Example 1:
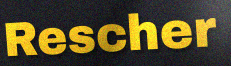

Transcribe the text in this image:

Rescher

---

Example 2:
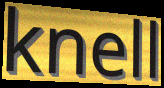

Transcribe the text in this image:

knell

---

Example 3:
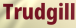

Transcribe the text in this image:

Trudgill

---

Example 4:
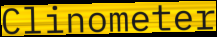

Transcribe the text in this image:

Clinometer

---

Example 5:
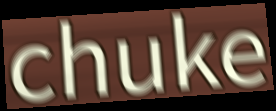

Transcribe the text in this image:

chuke